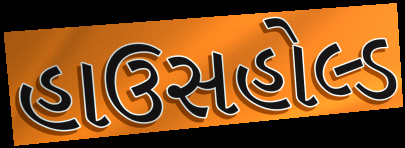
હાઉસહોલ્ડ